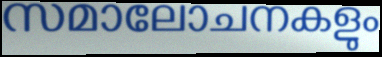
സമാലോചനകളും